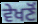
ਵੇਖਣੋਂ